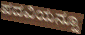
ಪದವಿಯನ್ನೂ